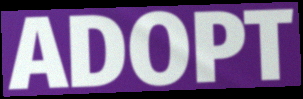
ADOPT